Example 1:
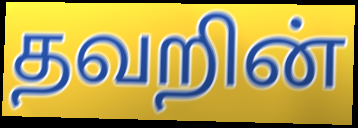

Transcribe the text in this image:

தவறின்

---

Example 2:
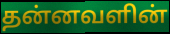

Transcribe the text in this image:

தன்னவளின்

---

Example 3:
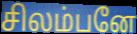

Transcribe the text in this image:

சிலம்பனே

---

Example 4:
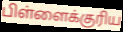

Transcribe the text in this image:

பிள்ளைக்குரிய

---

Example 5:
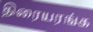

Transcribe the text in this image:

திரையரங்க